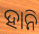
ହାନି